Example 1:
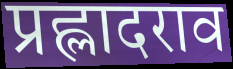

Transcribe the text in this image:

प्रह्लादराव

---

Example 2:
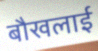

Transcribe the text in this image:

बौखलाई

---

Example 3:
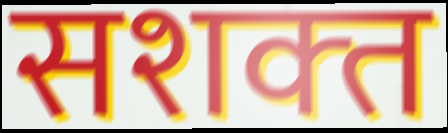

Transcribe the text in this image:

सशक्‍त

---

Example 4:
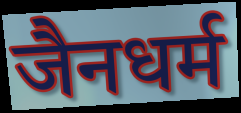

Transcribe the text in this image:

जैनधर्म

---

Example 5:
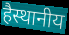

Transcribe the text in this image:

हैस्थानीय